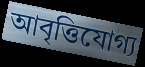
আবৃত্তিযোগ্য